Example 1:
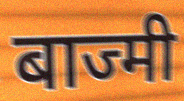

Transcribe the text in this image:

बाज्मी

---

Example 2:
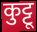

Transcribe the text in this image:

कुट्टू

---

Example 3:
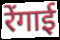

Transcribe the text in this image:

रेंगाई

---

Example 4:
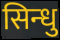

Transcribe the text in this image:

सिन्‍धु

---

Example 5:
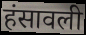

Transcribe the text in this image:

हंसावली